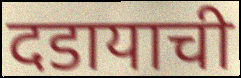
दडायाची